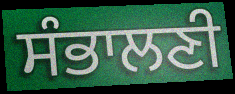
ਸੰਭਾਲਣੀ